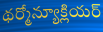
థర్మోన్యూక్లియర్